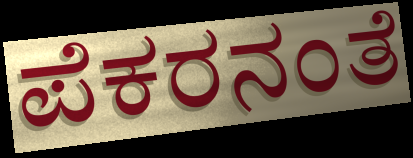
ಪೆಕರನಂತೆ